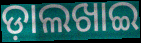
ଡ଼ାଲଖାଇ